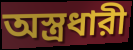
অস্ত্রধারী